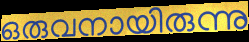
ഒരുവനായിരുന്നു